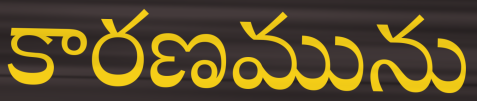
కారణమును